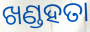
ଖଣ୍ଡହତା